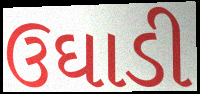
ઉઘાડી